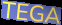
TEGA